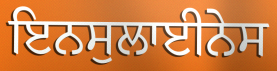
ਇਨਸੁਲਾਈਨੇਸ